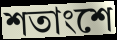
শতাংশে